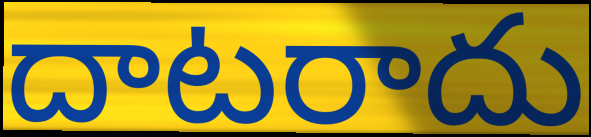
దాటరాదు